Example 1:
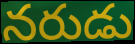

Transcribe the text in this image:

నరుడు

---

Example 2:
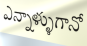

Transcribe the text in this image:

ఎన్నాళ్ళుగానో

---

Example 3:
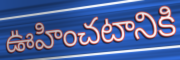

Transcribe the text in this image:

ఊహించటానికి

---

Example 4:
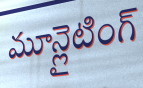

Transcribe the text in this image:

మూన్లైటింగ్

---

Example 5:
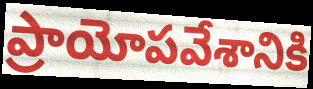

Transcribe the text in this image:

ప్రాయోపవేశానికి